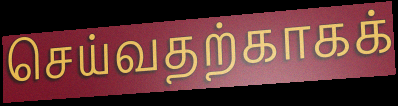
செய்வதற்காகக்